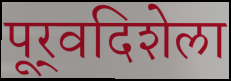
पूर्वदिशेला